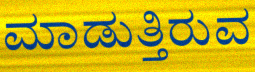
ಮಾಡುತ್ತಿರುವ